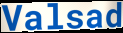
Valsad